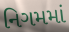
નિગમમાં